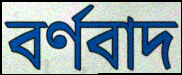
বর্ণবাদ